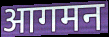
आगमन